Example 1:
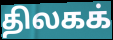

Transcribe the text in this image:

திலகக்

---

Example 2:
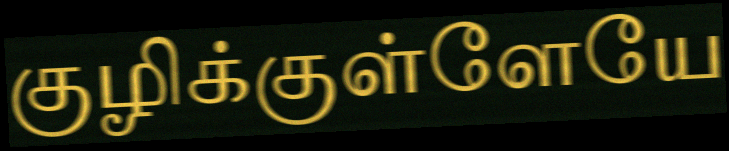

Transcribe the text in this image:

குழிக்குள்ளேயே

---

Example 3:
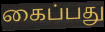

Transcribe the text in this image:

கைப்பது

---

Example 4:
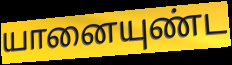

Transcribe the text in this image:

யானையுண்ட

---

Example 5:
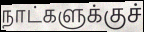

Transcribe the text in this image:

நாட்களுக்குச்